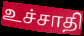
உச்சாதி